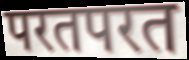
परतपरत